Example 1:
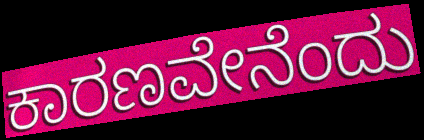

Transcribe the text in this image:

ಕಾರಣವೇನೆಂದು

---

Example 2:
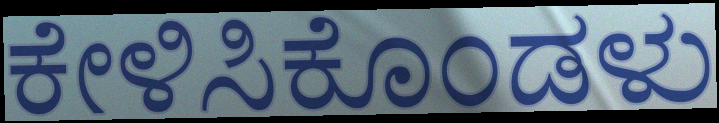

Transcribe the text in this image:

ಕೇಳಿಸಿಕೊಂಡಳು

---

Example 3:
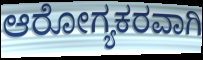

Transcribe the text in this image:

ಆರೋಗ್ಯಕರವಾಗಿ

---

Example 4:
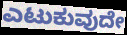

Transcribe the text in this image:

ಎಟುಕುವುದೇ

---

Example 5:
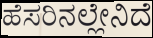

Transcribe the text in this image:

ಹೆಸರಿನಲ್ಲೇನಿದೆ